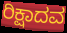
ರಿಕ್ಷಾದವ